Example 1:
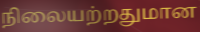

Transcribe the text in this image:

நிலையற்றதுமான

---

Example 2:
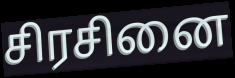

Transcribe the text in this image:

சிரசினை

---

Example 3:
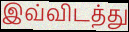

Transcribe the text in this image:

இவ்விடத்து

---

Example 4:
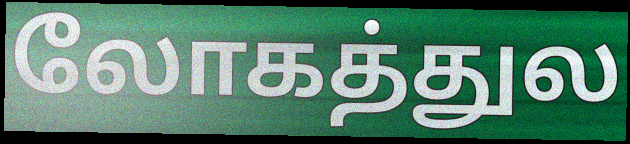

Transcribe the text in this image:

லோகத்துல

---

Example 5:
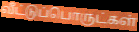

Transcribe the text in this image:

வீட்டுப்பொருட்கள்